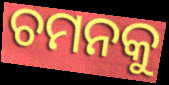
ଚମନକୁ